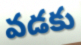
వడకు